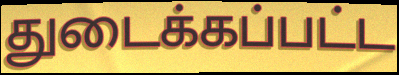
துடைக்கப்பட்ட